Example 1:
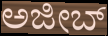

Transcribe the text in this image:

ಅಜೀಬ್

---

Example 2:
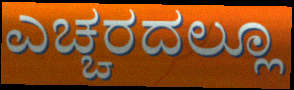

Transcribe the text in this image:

ಎಚ್ಚರದಲ್ಲೂ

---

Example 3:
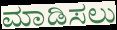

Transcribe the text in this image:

ಮಾಡಿಸಲು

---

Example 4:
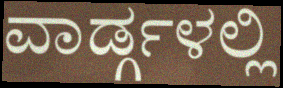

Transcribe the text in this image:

ವಾರ್ಡ್ಗಳಲ್ಲಿ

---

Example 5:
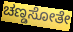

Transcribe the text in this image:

ಚಣ್ಡಸೋತೇ